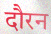
दौरन